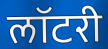
लॉटरी